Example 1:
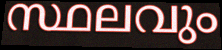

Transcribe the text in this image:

സ്ഥലവും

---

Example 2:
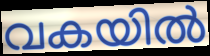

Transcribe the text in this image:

വകയിൽ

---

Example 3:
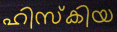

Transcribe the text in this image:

ഹിസ്കിയ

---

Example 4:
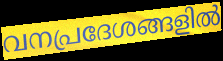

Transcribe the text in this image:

വനപ്രദേശങ്ങളിൽ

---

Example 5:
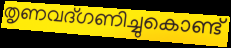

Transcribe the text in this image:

തൃണവദ്ഗണിച്ചുകൊണ്ട്